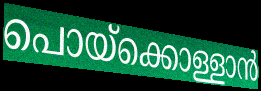
പൊയ്ക്കൊള്ളാൻ